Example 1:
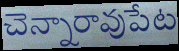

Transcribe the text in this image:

చెన్నారావుపేట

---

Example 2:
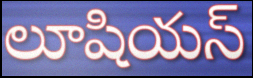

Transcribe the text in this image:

లూషియస్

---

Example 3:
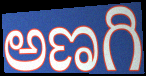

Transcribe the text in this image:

అణగి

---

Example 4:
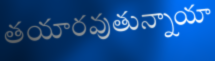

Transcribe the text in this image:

తయారవుతున్నాయా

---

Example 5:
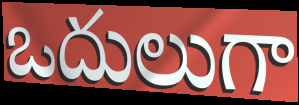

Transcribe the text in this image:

ఒదులుగా